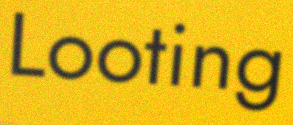
Looting